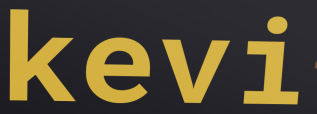
kevi